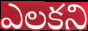
ఎలకని